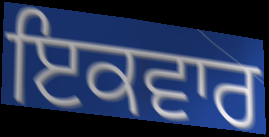
ਇਕਵਾਰ